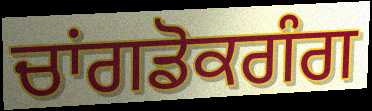
ਚਾਂਗਡੋਕਗੰਗ